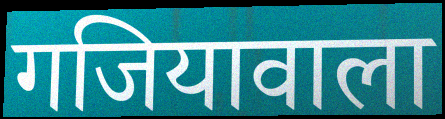
गजियावाला